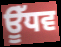
ਊੱਧਵ